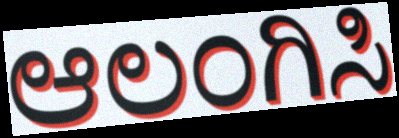
ಆಲಂಗಿಸಿ